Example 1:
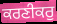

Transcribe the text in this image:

ਕਰਣੀਕਰੁ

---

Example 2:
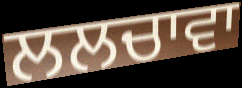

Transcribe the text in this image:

ਲਲਚਾਵਾ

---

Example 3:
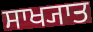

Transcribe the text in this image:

ਸਾਖ੍ਯਾਤ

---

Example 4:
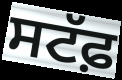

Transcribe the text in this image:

ਸਟੱਫ਼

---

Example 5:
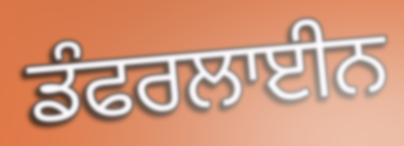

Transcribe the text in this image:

ਡੰਫਰਲਾਈਨ